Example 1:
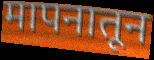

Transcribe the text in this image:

मापनातून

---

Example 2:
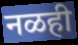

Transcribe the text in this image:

नळही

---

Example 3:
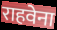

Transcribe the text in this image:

राहवेना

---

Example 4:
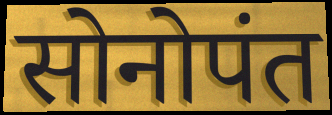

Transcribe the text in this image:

सोनोपंत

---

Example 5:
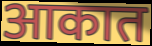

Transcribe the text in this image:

आकात